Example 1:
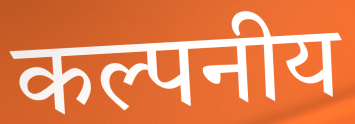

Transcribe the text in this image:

कल्पनीय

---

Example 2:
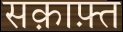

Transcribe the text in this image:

सक़ाफ़्त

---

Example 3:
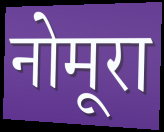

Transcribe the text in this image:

नोमूरा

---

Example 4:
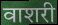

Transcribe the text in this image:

वाशरी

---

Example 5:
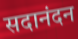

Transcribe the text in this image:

सदानंदन